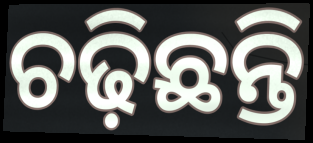
ଚଢ଼ିଛନ୍ତି